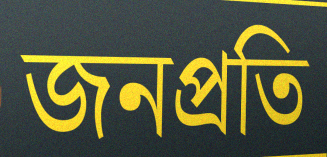
জনপ্রতি